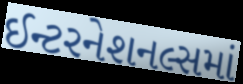
ઈન્ટરનેશનલ્સમાં